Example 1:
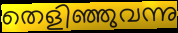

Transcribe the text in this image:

തെളിഞ്ഞുവന്നു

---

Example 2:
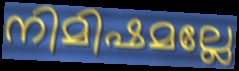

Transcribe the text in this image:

നിമിഷമല്ലേ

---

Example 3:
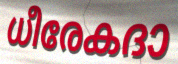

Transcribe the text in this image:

ധീരേകദാ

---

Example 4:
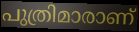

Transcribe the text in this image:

പുത്രിമാരാണ്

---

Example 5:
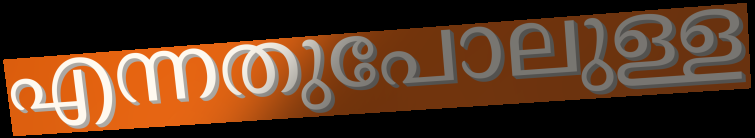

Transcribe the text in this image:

എന്നതുപോലുള്ള